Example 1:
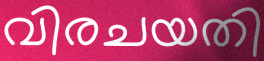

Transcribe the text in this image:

വിരചയതി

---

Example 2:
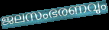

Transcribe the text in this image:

ജലസംഭരണവും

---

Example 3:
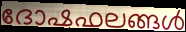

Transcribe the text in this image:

ദോഷഫലങ്ങൾ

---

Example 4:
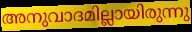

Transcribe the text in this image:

അനുവാദമില്ലായിരുന്നു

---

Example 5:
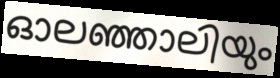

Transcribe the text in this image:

ഓലഞ്ഞാലിയും